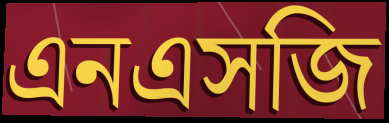
এনএসজি